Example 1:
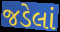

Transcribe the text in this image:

જડેલાં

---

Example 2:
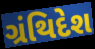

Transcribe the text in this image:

ગ્રંથિદેશ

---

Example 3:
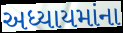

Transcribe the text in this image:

અધ્યાયમાંના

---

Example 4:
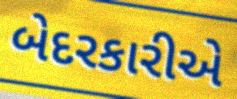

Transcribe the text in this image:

બેદરકારીએ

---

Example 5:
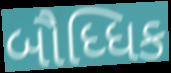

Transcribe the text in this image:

બૌધ્ધિક